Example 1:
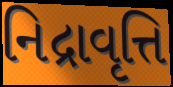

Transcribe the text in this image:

નિદ્રાવૃત્તિ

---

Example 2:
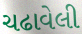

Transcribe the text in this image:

ચઢાવેલી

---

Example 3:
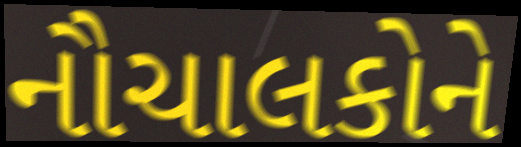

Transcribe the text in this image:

નૌચાલકોને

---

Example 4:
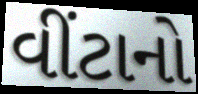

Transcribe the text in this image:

વીંટાનો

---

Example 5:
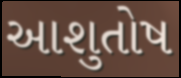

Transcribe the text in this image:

આશુતોષ